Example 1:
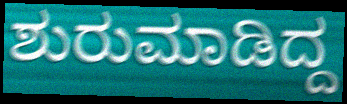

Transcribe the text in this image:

ಶುರುಮಾಡಿದ್ದ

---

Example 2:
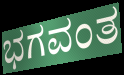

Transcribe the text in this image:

ಭಗವಂತ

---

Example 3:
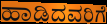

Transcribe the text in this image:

ಹಾಡಿದವರಿಗೆ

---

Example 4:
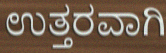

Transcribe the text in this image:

ಉತ್ತರವಾಗಿ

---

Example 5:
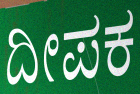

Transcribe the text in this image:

ದೀಪಕ